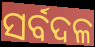
ସର୍ବଦଳ